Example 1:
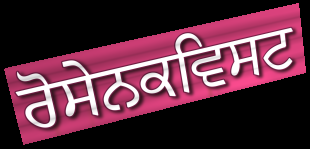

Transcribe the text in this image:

ਰੋਸੇਨਕਵਿਸਟ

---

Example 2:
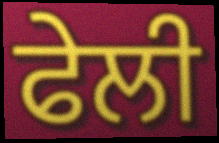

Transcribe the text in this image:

ਫੇਲੀ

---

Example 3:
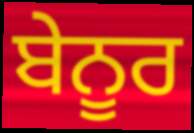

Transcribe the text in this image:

ਬੇਨੂਰ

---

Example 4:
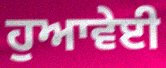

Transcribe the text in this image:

ਹੁਆਵੇਈ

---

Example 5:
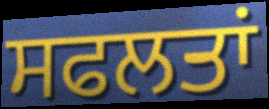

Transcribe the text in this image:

ਸਫਲਤਾਂ